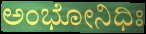
ಅಂಭೋನಿಧಿಃ